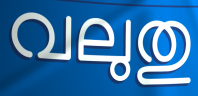
വലുതു